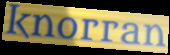
knorran